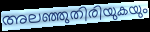
അലഞ്ഞുതിരിയുകയും